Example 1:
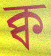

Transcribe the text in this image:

ক্ব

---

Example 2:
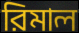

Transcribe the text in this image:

রিমাল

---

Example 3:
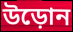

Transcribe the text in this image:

উড়োন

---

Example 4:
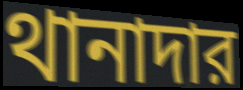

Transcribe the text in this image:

থানাদার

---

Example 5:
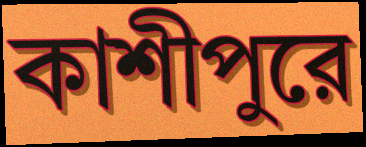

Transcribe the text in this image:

কাশীপুরে